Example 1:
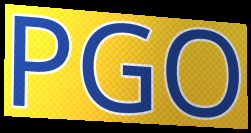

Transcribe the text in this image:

PGO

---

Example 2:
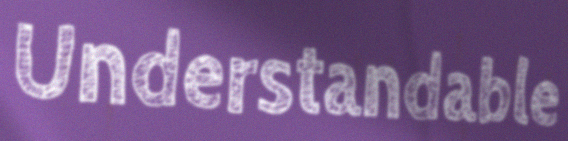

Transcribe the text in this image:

Understandable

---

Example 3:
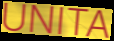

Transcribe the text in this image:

UNITA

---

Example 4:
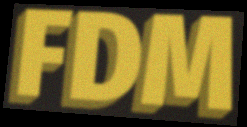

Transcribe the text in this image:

FDM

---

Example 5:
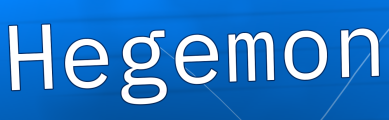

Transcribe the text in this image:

Hegemon